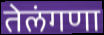
तेलंगणा